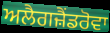
ਅਲੈਗਜ਼ੈਂਡਰੋਵਾ